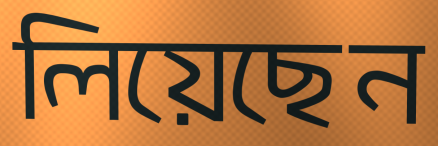
লিয়েছেন